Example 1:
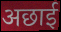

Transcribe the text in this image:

अछाई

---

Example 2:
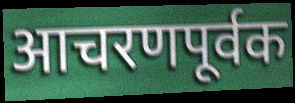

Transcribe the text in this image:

आचरणपूर्वक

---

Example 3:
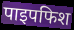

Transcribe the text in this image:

पाइपफिश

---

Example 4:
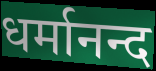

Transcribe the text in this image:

धर्मानन्द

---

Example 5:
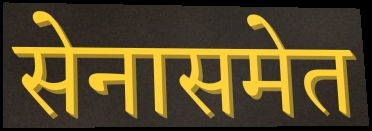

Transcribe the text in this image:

सेनासमेत